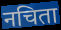
नचिता